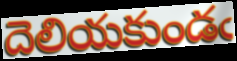
దెలియకుండఁ